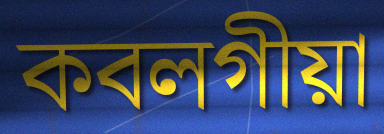
কবলগীয়া